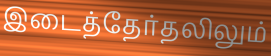
இடைத்தேர்தலிலும்